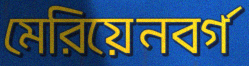
মেরিয়েনবর্গ